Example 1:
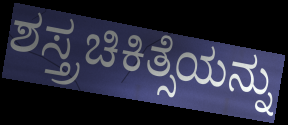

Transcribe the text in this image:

ಶಸ್ತ್ರಚಿಕಿತ್ಸೆಯನ್ನು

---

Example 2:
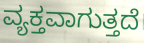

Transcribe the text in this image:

ವ್ಯಕ್ತವಾಗುತ್ತದೆ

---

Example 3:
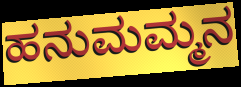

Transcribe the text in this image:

ಹನುಮಮ್ಮನ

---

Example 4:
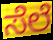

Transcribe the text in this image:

ಸೆಲೆ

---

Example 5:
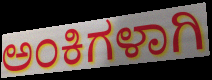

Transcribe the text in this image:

ಅಂಕಿಗಳಾಗಿ